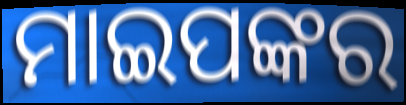
ମାଇପଙ୍କର